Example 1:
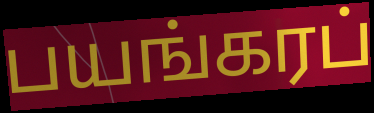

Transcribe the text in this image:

பயங்கரப்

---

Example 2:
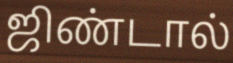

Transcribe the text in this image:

ஜிண்டால்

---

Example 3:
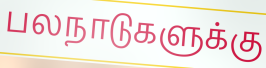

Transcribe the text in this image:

பலநாடுகளுக்கு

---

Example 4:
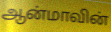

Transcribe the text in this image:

ஆன்மாவின்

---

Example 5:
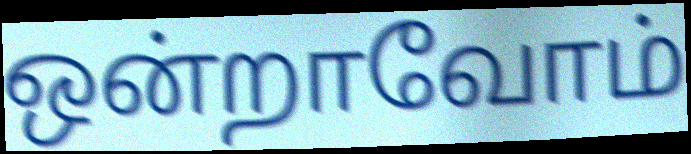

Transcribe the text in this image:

ஒன்றாவோம்